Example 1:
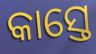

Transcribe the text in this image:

କାସ୍ତେ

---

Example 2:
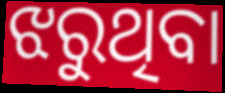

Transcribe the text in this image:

ଝରୁଥିବା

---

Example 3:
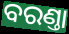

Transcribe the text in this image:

ବରଣ୍ତା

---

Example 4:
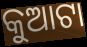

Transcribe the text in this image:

କୁଆଟା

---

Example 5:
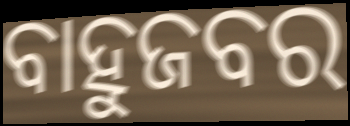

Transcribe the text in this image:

ବାହୁଜବର